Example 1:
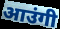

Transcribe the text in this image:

आउंगी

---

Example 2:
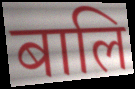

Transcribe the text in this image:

बालि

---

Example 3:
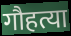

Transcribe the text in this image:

गौहत्या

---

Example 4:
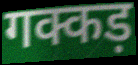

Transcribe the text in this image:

गक्कड़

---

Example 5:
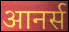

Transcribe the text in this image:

आनर्स